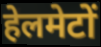
हेलमेटों